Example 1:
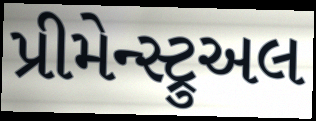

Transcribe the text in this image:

પ્રીમેન્સ્ટ્રુઅલ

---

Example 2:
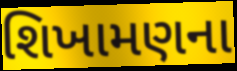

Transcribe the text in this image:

શિખામણના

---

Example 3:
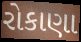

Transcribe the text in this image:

રોકાણા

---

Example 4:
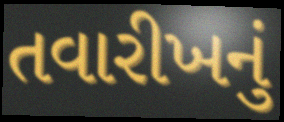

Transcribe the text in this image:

તવારીખનું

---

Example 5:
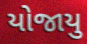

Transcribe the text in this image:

યોજાયુ